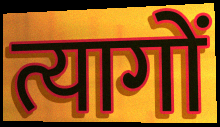
त्यागों